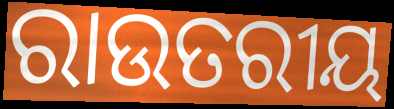
ରାଉତରୀୟ